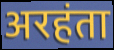
अरहंता